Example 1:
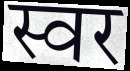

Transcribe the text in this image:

स्वर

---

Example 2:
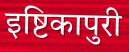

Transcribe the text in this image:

इष्टिकापुरी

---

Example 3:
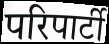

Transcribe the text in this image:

परिपार्टी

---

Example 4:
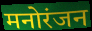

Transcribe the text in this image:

मनोरंजन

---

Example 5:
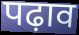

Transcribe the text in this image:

पढ़ाव